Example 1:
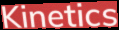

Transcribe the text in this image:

Kinetics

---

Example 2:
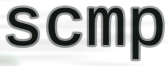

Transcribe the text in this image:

scmp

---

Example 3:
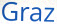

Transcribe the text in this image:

Graz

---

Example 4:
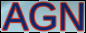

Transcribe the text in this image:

AGN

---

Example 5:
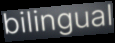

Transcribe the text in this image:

bilingual